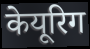
केयूरिग